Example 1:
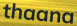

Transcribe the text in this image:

thaana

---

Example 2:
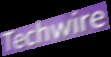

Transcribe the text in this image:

Techwire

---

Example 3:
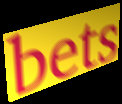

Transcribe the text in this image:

bets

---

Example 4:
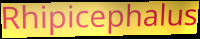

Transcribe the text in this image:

Rhipicephalus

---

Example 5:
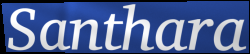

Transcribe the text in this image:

Santhara